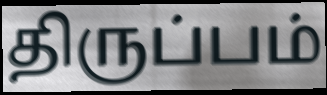
திருப்பம்